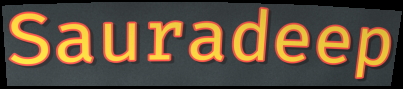
Sauradeep